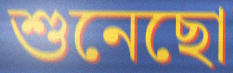
শুনেছো